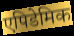
एपिडेमिक